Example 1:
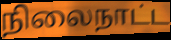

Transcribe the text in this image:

நிலைநாட்ட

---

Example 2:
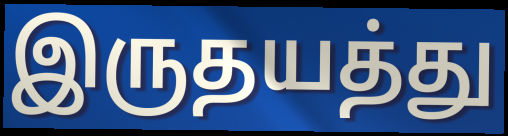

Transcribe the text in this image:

இருதயத்து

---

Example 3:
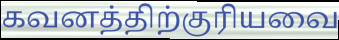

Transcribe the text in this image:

கவனத்திற்குரியவை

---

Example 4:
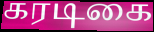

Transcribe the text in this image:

கரடிகை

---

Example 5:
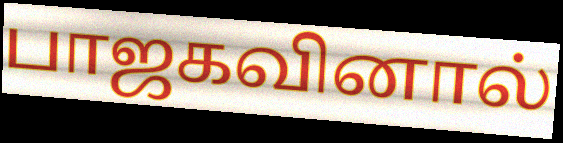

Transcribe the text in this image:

பாஜகவினால்